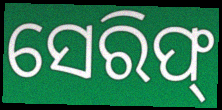
ସେରିଫ୍